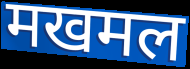
मखमल